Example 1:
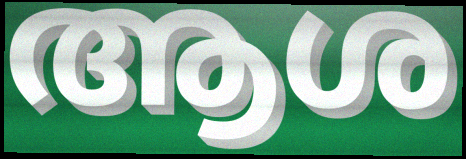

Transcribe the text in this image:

ആശ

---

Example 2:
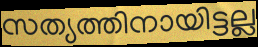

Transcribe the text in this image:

സത്യത്തിനായിട്ടല്ല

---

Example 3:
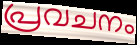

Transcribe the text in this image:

പ്രവചനം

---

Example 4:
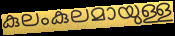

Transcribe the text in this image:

കുലംകുലമായുള്ള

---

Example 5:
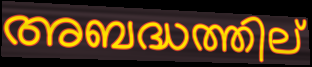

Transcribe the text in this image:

അബദ്ധത്തില്